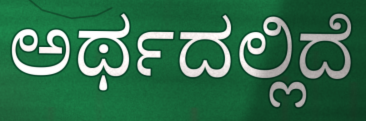
ಅರ್ಥದಲ್ಲಿದೆ